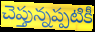
చెప్తున్నప్పటికీ